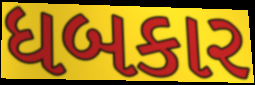
ધબકાર